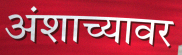
अंशाच्यावर